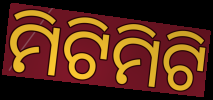
ମିଟିମିଟି